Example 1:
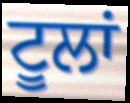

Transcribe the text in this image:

ਟੂਲਾਂ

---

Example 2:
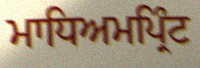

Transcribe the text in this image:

ਮਾਧਿਅਮਪ੍ਰਿੰਟ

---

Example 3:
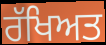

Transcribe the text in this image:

ਰੱਖਿਅਤ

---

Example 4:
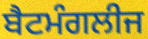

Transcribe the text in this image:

ਬੈਟਮੰਗਲੀਜ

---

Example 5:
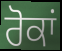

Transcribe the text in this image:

ਰੋਕਾਂ